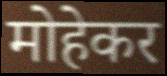
मोहेकर